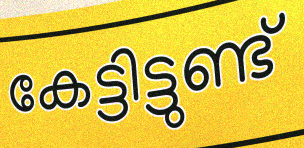
കേട്ടിട്ടുണ്ട്